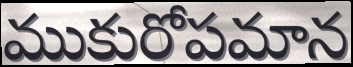
ముకురోపమాన